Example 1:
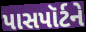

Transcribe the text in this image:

પાસપૉર્ટને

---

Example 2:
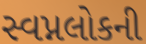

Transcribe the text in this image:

સ્વપ્નલોકની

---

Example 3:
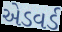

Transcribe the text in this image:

એડવર્ડ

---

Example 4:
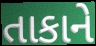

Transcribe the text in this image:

તાકાને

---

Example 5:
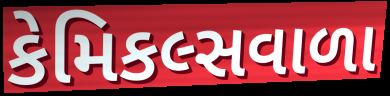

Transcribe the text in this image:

કેમિકલ્સવાળા